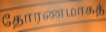
தோரணமாகத்